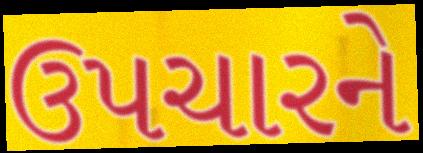
ઉપચારને